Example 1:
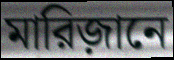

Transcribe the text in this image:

মারিজ়ানে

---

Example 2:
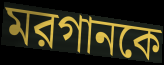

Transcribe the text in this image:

মরগানকে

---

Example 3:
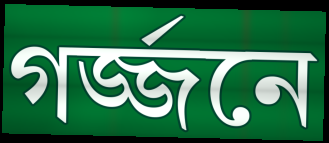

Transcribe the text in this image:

গর্জ্জনে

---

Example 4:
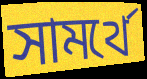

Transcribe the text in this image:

সামর্থে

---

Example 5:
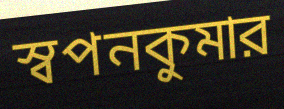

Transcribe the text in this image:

স্বপনকুমার